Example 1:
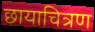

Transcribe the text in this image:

छायाचित्रण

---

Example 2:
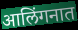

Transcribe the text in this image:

आलिंगनात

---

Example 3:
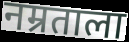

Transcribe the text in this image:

नम्रताला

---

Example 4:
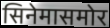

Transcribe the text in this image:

सिनेमासमोर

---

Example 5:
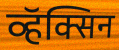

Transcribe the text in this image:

व्हॅक्सिन